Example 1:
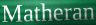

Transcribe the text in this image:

Matheran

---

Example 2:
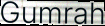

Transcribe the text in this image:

Gumrah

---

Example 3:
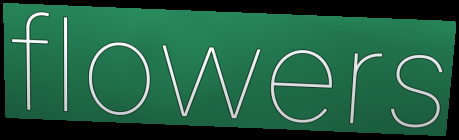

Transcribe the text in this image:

flowers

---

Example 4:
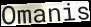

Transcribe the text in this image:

Omanis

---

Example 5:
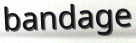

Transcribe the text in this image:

bandage